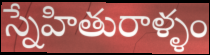
స్నేహితురాళ్ళం